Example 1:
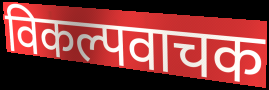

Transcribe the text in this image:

विकल्पवाचक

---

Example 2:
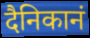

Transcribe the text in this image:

दैनिकानं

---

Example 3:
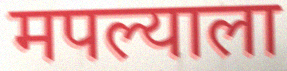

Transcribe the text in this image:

मपल्याला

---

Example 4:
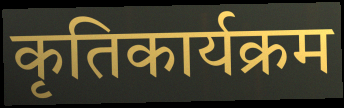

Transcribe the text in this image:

कृतिकार्यक्रम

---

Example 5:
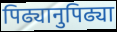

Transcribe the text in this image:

पिढ्यानुपिढ्या